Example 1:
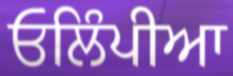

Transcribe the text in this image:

ਓਲਿੰਪੀਆ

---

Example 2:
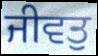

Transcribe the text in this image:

ਜੀਵਤੁ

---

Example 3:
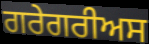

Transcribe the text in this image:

ਗਰੇਗਰੀਅਸ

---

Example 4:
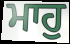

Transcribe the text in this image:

ਮਾਹੁ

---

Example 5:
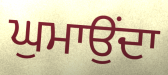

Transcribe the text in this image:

ਘੁਮਾਉਂਦਾ